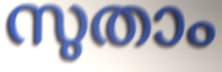
സുതാം